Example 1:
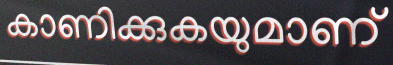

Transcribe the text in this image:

കാണിക്കുകയുമാണ്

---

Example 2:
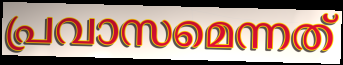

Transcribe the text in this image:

പ്രവാസമെന്നത്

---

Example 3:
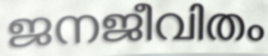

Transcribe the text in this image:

ജനജീവിതം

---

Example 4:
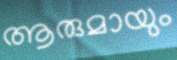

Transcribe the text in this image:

ആരുമായും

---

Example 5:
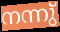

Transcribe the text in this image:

നന്നു്